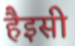
हैइसी